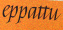
eppattu